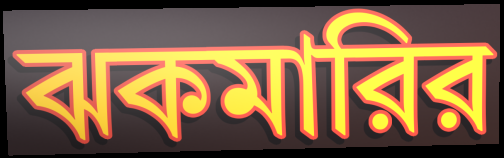
ঝকমারির